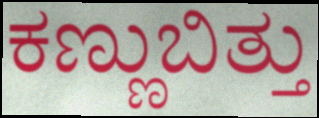
ಕಣ್ಣುಬಿತ್ತು